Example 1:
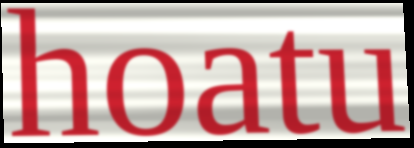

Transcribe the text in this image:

hoatu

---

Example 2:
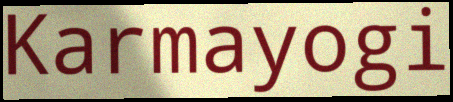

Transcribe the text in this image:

Karmayogi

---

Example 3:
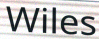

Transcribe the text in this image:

Wiles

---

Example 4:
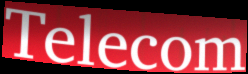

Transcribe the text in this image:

Telecom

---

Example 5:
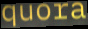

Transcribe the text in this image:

quora